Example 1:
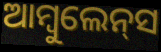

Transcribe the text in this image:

ଆମ୍ବୁଲେନ୍‌ସ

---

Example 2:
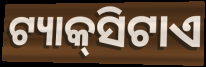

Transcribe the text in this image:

ଟ୍ୟାକ୍‌ସିଟାଏ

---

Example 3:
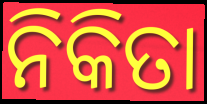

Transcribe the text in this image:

ନିକିତା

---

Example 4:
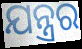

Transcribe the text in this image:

ଯନ୍ତ୍ରର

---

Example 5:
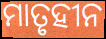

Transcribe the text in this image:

ମାତୃହୀନ